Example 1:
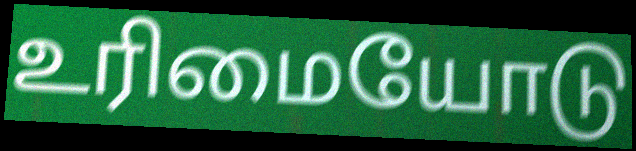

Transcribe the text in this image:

உரிமையோடு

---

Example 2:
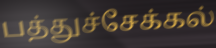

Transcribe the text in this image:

பத்துச்சேக்கல்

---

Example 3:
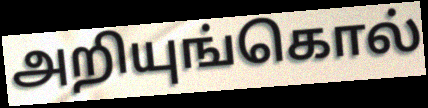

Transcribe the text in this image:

அறியுங்கொல்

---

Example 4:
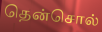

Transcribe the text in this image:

தென்சொல்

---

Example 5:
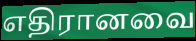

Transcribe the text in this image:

எதிரானவை